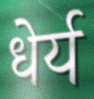
धेर्य